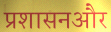
प्रशासनऔर